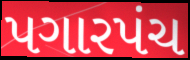
પગારપંચ